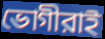
ভোগীরাই